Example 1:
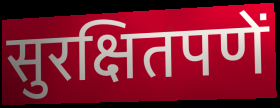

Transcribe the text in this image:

सुरक्षितपणें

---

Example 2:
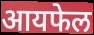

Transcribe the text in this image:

आयफेल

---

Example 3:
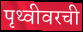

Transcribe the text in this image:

पृथ्वीवरची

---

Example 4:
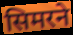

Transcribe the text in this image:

सिमरने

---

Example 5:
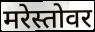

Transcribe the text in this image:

मरेस्तोवर